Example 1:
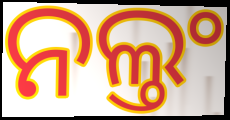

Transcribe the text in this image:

ନଲ୍ତଂ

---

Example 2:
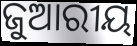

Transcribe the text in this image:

ଜୁଆରୀୟ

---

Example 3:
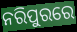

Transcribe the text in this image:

ନରିପୁରରେ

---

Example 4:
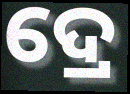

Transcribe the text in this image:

ଦ୍ରେ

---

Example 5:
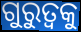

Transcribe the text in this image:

ଗୁରୁତ୍ବକୁ